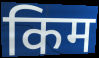
किम